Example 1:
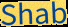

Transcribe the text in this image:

Shab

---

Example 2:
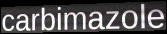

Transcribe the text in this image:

carbimazole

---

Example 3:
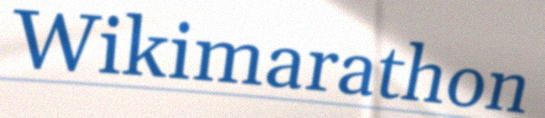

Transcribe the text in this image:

Wikimarathon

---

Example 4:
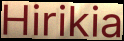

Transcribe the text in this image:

Hirikia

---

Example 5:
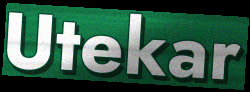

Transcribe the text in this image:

Utekar